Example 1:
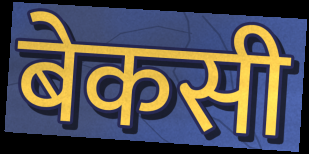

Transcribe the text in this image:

बेकसी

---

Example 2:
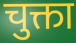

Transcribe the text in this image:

चुक्ता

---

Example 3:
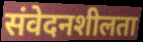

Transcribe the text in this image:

संवेदनशीलता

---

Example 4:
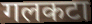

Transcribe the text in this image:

गलकटा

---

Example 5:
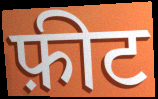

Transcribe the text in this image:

फ़ीट